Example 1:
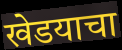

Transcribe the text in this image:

खेडयाचा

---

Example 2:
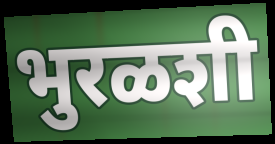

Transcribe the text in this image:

भुरळशी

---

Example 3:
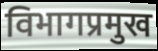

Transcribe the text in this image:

विभागप्रमुख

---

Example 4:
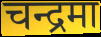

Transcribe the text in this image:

चन्द्रमा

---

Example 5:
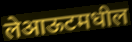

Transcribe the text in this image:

लेआऊटमधील